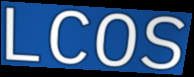
LCOS